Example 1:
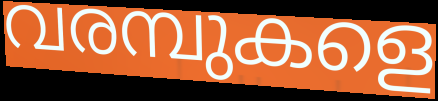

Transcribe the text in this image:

വരമ്പുകളെ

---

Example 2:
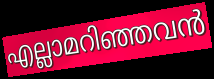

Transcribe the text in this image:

എല്ലാമറിഞ്ഞവൻ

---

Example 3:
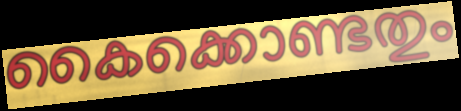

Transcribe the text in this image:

കൈക്കൊണ്ടതും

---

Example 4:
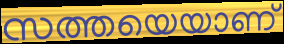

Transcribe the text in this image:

സത്തയെയാണ്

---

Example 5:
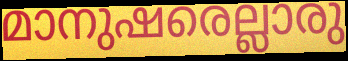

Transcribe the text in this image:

മാനുഷരെല്ലാരു